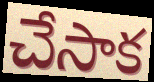
చేసాక